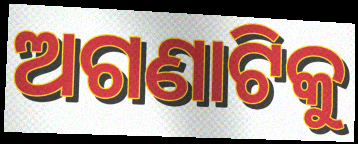
ଅଗଣାଟିକୁ